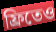
ফ্রিতেও